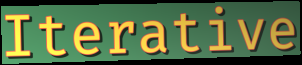
Iterative